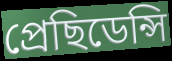
প্ৰেছিডেন্সি